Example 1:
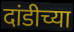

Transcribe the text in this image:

दांडीच्या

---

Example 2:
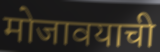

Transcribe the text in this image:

मोजावयाची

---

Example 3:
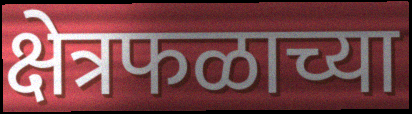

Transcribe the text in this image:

क्षेत्रफळाच्या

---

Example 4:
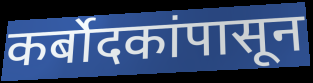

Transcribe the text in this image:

कर्बोदकांपासून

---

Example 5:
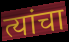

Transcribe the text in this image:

त्‍यांचा